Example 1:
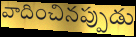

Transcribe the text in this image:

వాదించినప్పుడు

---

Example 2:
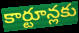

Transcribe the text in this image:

కార్టూన్లకు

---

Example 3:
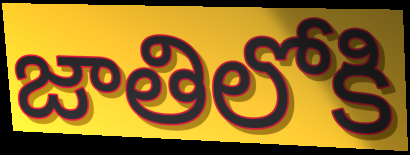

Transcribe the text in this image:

జాతిలోకి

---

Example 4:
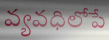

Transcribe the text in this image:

వ్యవధిలోపే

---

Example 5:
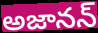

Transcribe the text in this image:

అజానన్